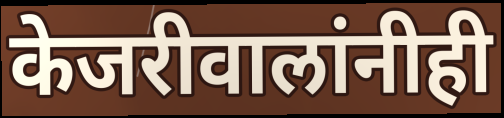
केजरीवालांनीही